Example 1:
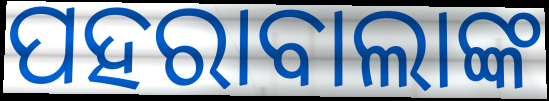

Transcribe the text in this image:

ପହରାବାଲାଙ୍କ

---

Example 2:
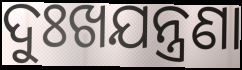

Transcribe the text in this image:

ଦୁଃଖଯନ୍ତ୍ରଣା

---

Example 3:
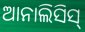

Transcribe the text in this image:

ଆନାଲିସିସ୍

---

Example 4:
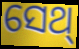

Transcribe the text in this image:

ସେଥ୍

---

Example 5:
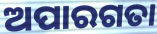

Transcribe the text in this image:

ଅପାରଗତା